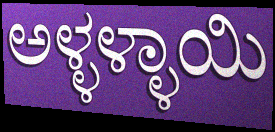
ಅಳ್ಳಳ್ಳಾಯಿ